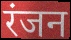
रंजन